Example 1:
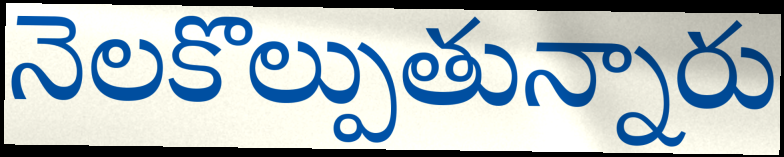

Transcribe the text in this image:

నెలకొల్పుతున్నారు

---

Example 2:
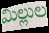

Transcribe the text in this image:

మిల్లుల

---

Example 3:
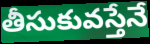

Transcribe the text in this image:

తీసుకువస్తేనే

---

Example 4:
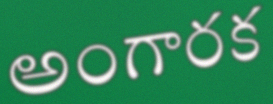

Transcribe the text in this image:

అంగారక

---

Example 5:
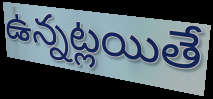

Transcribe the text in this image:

ఉన్నట్లయితే